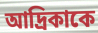
আদ্রিকাকে